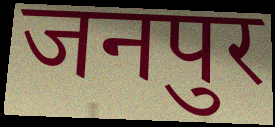
जनपुर